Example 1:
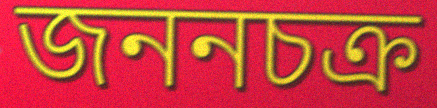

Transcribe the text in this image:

জননচক্র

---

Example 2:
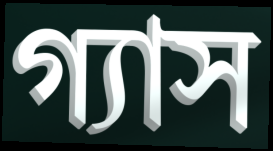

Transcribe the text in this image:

গ্যাস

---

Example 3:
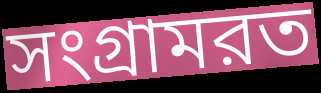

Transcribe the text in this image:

সংগ্রামরত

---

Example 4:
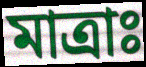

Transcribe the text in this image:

মাত্রাঃ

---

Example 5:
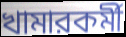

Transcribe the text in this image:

খামারকর্মী